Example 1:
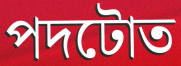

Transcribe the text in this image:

পদটোত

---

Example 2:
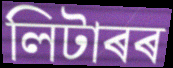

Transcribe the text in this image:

লিটাৰৰ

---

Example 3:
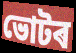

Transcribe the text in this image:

ভোটৰ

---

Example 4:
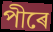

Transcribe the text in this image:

পীৰে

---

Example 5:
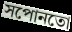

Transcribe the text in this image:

সপোনতো